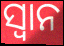
ସ୍ୱାନ